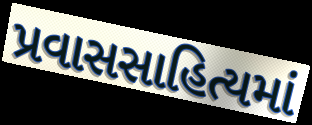
પ્રવાસસાહિત્યમાં